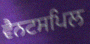
ਵੈਨਟਸਪਿਲ